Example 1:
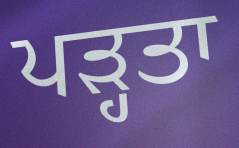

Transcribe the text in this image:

ਪੜ੍ਹਤਾ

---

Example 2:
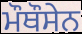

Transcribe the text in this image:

ਮੌਥੌਸੇਨ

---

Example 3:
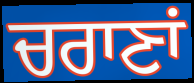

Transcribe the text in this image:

ਚਰਾਣਾਂ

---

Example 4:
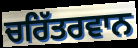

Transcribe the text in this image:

ਚਰਿੱਤਰਵਾਨ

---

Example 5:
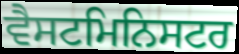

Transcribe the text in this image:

ਵੈਸਟਮਿਨਿਸਟਰ